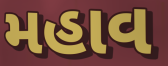
મહાવ